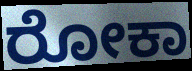
ರೋಕಾ